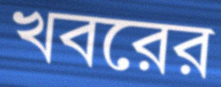
খবরের